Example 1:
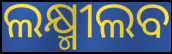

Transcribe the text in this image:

ଲକ୍ଷ୍ମୀଲବ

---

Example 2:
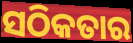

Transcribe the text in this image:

ସଠିକତାର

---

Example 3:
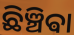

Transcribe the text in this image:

ଛିଞ୍ଚିଵା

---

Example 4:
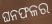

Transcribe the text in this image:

ଘନଫଳର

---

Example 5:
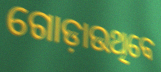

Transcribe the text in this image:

ଗୋଡ଼ାଉଥିବେ